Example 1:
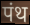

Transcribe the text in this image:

पंथ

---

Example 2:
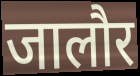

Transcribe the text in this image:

जालौर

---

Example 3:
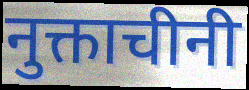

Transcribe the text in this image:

नुक्ताचीनी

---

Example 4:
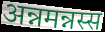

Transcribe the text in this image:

अन्नमन्नस्स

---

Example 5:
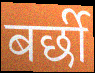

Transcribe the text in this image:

बर्छी